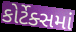
કોર્ટેક્સમાં